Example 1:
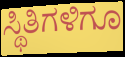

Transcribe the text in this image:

ಸ್ಥಿತಿಗಳಿಗೂ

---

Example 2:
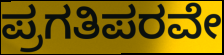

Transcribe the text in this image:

ಪ್ರಗತಿಪರವೇ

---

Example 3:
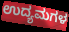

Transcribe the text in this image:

ಉದ್ಯಮಗಳ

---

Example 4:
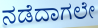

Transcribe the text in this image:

ನಡೆದಾಗಲೇ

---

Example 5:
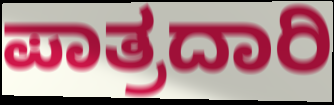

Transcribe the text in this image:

ಪಾತ್ರದಾರಿ